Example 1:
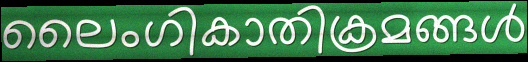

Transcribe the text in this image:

ലൈംഗികാതിക്രമങ്ങൾ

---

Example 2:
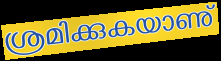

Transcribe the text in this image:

ശ്രമിക്കുകയാണു്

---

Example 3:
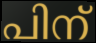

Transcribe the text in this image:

പിന്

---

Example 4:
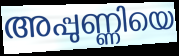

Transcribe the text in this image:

അപ്പുണ്ണിയെ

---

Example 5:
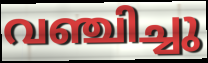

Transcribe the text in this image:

വഞ്ചിച്ചു